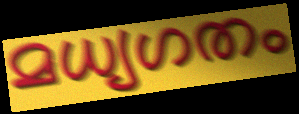
മധ്യഗതം